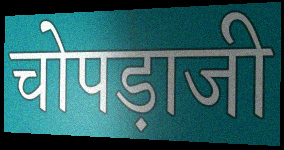
चोपड़ाजी